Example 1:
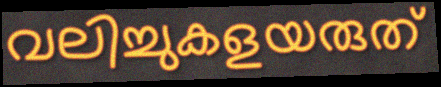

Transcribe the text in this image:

വലിച്ചുകളയരുത്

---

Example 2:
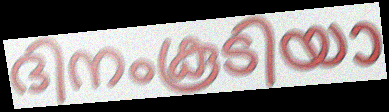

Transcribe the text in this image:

ദിനംകൂടിയാ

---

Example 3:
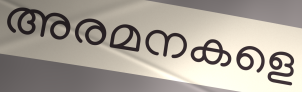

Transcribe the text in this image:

അരമനകളെ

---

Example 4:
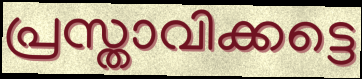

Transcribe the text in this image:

പ്രസ്താവിക്കട്ടെ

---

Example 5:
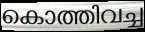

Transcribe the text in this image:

കൊത്തിവച്ച